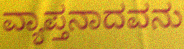
ವ್ಯಾಪ್ತನಾದವನು